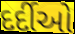
દર્દીઓ